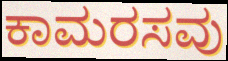
ಕಾಮರಸವು